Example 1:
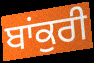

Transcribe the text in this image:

ਬਾਂਕੁਰੀ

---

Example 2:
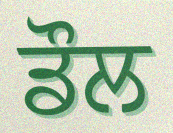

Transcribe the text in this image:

ਡੌਲ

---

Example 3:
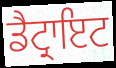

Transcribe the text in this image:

ਡੈਟ੍ਰਾਇਟ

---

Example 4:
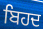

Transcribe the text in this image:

ਬਿਹਦ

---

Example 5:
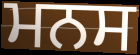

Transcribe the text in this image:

ਮਨਸ